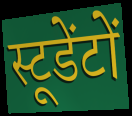
स्टूडेंटों